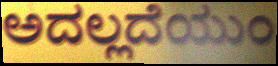
ಅದಲ್ಲದೆಯುಂ